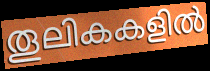
തൂലികകളിൽ